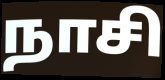
நாசி